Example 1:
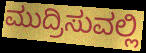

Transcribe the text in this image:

ಮುದ್ರಿಸುವಲ್ಲಿ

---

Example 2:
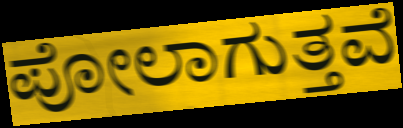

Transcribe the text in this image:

ಪೋಲಾಗುತ್ತವೆ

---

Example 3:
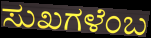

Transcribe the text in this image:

ಸುಖಗಳೆಂಬ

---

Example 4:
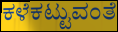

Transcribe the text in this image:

ಕಳೆಕಟ್ಟುವಂತೆ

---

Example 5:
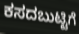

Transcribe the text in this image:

ಕಸದಬುಟ್ಟಿಗೆ